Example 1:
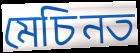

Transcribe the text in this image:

মেচিনত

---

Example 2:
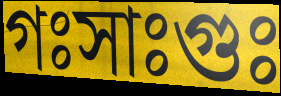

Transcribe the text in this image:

গঃসাঃগুঃ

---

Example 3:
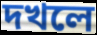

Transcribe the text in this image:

দখলে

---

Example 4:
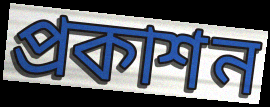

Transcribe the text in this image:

প্ৰকাশন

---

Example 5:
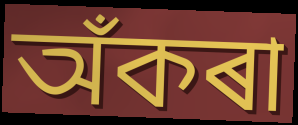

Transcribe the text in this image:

অঁকৰা